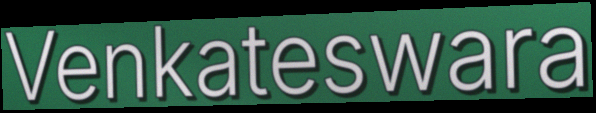
Venkateswara